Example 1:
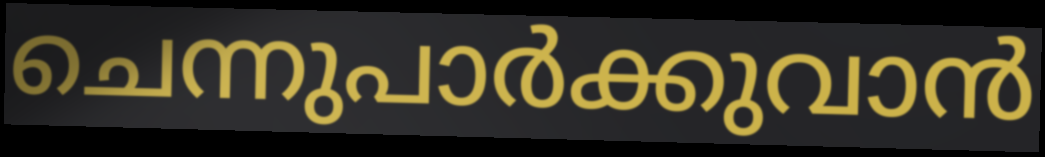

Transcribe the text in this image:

ചെന്നുപാർക്കുവാൻ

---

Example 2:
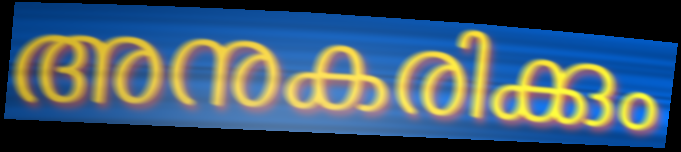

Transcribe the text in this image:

അനുകരിക്കും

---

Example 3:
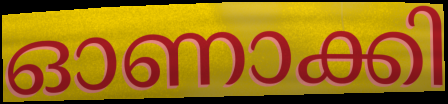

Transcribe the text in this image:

ഓണാക്കി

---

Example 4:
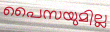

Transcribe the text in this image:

പൈസയുമില്ല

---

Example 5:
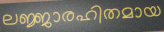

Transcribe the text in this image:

ലജ്ജാരഹിതമായ